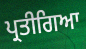
ਪ੍ਰਤੀਗਿਆ